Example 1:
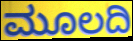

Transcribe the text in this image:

ಮೂಲದಿ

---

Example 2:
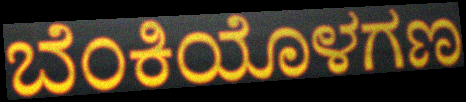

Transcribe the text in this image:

ಬೆಂಕಿಯೊಳಗಣ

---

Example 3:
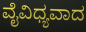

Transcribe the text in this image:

ವೈವಿಧ್ಯವಾದ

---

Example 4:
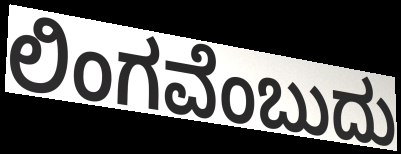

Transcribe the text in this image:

ಲಿಂಗವೆಂಬುದು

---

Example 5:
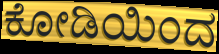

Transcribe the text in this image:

ಕೋಡಿಯಿಂದ